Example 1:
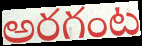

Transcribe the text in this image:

అరగంట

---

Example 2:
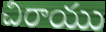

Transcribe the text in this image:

చిరాయు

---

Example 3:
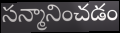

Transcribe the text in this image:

సన్మానించడం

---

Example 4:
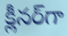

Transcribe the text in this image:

క్లీనర్‌గా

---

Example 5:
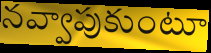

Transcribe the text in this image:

నవ్వాపుకుంటూ